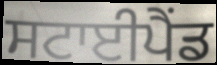
ਸਟਾਈਪੈਂਡ